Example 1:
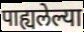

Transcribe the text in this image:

पाह्यलेल्या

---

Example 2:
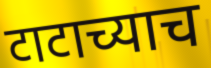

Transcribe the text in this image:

टाटाच्याच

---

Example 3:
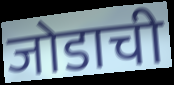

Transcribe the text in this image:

जोडाची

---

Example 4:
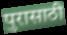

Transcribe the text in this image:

पुरासाठी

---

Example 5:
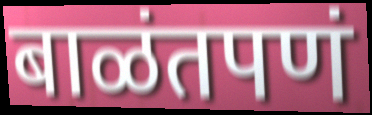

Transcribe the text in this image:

बाळंतपणं